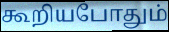
கூறியபோதும்